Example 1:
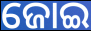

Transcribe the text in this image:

ଜୋଇ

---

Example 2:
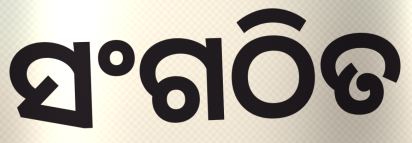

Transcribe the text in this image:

ସଂଗଠିତ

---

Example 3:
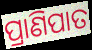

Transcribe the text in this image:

ପ୍ରାଣିପାତ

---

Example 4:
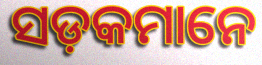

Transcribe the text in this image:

ସଡ଼କମାନେ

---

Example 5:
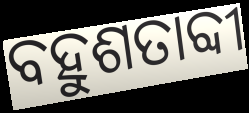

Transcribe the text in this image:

ବହୁଶତାବ୍ଦୀ